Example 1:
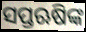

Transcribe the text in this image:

ସପ୍ତଋଷିଙ୍କ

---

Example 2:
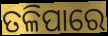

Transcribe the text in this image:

ତଳିପାରେ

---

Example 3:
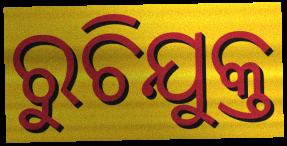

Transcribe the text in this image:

ରୁଚିଯୁକ୍ତ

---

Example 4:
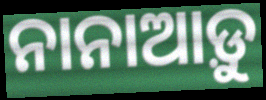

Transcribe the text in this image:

ନାନାଆଡ଼ୁ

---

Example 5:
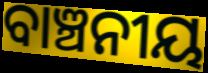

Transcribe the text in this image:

ବାଞ୍ଚନୀୟ